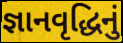
જ્ઞાનવૃદ્ધિનું